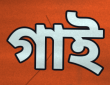
গাই